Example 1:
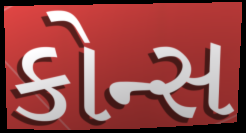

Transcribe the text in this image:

કોન્સ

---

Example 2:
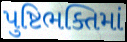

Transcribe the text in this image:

પુષ્ટિભક્તિમાં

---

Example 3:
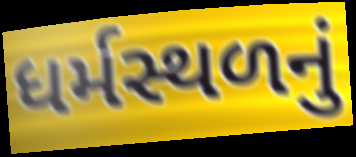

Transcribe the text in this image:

ધર્મસ્થળનું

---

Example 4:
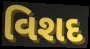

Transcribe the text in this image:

વિશદ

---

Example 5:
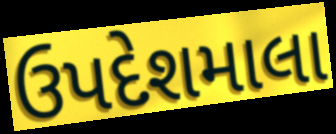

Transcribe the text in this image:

ઉપદેશમાલા